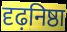
दृढ़निष्ठा